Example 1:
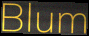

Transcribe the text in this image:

Blum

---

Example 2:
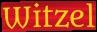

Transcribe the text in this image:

Witzel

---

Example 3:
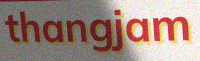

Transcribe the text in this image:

thangjam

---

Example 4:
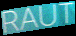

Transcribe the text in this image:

RAUT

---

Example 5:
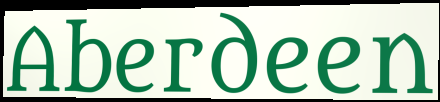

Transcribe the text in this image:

Aberdeen